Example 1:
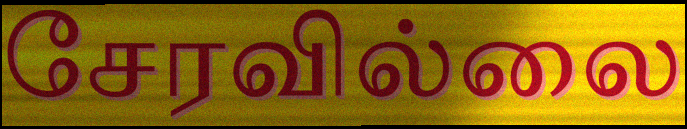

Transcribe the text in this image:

சேரவில்லை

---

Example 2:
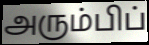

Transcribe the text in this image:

அரும்பிப்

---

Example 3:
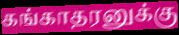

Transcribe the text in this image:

கங்காதரனுக்கு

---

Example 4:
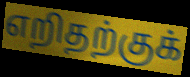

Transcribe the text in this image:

எறிதற்குக்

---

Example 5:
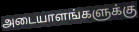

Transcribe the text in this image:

அடையாளங்களுக்கு